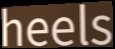
heels